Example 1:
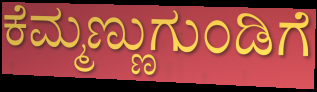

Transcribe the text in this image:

ಕೆಮ್ಮಣ್ಣುಗುಂಡಿಗೆ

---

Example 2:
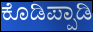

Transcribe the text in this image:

ಕೊಡಿಪ್ಪಾಡಿ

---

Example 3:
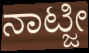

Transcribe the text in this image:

ನಾಟ್ಜೀ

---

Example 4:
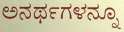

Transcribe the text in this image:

ಅನರ್ಥಗಳನ್ನೂ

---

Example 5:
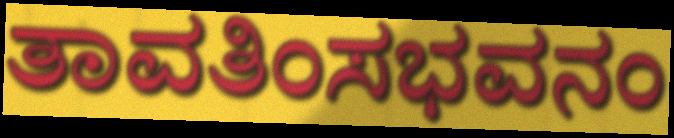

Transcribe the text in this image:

ತಾವತಿಂಸಭವನಂ